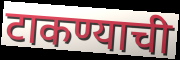
टाकण्याची